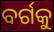
ବର୍ଗକୁ